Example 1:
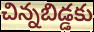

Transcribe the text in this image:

చిన్నబిడ్డకు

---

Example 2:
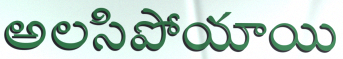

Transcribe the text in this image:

అలసిపోయాయి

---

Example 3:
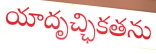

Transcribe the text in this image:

యాదృచ్ఛికతను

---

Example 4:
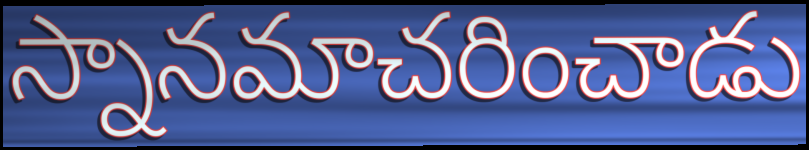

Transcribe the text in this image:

స్నానమాచరించాడు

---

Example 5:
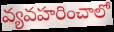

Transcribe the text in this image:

వ్యవహరించాలో